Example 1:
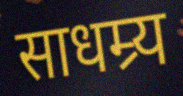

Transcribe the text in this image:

साधम्र्य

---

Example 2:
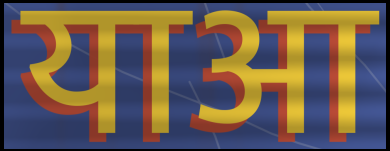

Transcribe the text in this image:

याआ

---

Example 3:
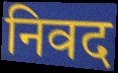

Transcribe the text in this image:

निवद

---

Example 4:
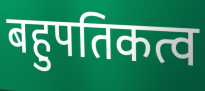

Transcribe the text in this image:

बहुपतिकत्व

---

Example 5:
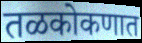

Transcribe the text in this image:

तळकोकणात